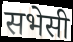
सभेसी